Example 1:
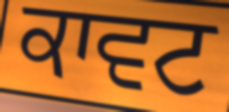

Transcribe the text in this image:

ਕਾਵਟ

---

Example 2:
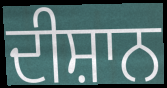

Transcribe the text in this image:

ਦੀਸ਼ਾਨ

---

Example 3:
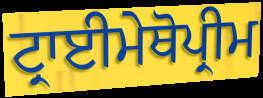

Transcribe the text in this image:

ਟ੍ਰਾਈਮੇਥੋਪ੍ਰੀਮ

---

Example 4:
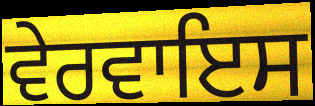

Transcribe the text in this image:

ਵੇਰਵਾਇਸ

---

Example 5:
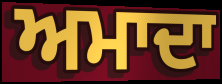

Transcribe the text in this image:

ਅਮਾਦਾ